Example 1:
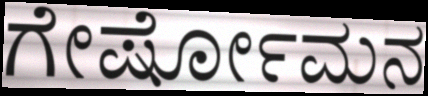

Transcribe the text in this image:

ಗೇರ್ಷೋಮನ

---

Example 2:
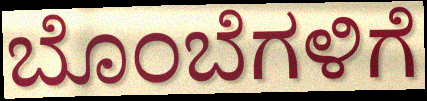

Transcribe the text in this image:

ಬೊಂಬೆಗಳಿಗೆ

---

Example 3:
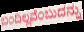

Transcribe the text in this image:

ಬಂದಿಲ್ಲವೆಂಬುದನ್ನು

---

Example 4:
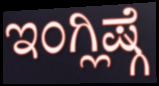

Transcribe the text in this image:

ಇಂಗ್ಲಿಷ್ಗೆ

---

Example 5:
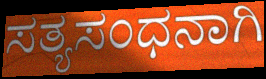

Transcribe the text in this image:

ಸತ್ಯಸಂಧನಾಗಿ